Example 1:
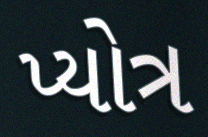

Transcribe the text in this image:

પ્યોત્ર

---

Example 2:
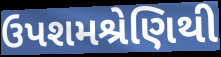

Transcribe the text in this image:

ઉપશમશ્રેણિથી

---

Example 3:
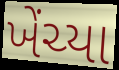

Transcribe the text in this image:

ખેંચ્યા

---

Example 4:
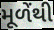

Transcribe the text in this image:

મૂળેંથી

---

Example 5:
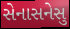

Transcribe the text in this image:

સેનાસનેસુ